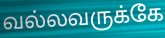
வல்லவருக்கே